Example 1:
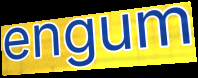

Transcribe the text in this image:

engum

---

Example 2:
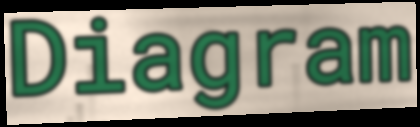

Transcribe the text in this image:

Diagram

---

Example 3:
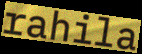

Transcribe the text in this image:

rahila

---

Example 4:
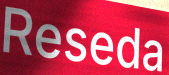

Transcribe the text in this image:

Reseda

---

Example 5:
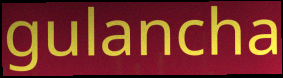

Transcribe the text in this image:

gulancha